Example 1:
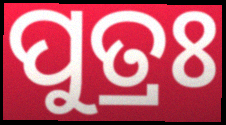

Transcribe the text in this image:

ପୁତ୍ରଃ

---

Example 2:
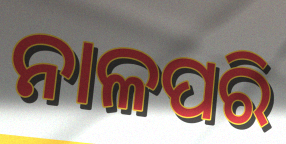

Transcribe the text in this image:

ନାଳପରି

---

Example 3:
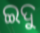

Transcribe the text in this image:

ଇଦୁ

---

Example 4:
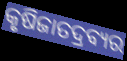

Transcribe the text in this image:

କୃଷିଜାତଦ୍ରବ୍ୟର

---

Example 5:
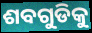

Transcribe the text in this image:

ଶବଗୁଡିକୁ